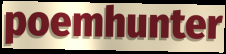
poemhunter